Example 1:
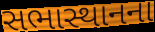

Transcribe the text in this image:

સભાસ્થાનના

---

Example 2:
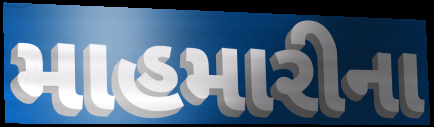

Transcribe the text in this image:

માહમારીના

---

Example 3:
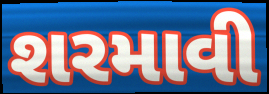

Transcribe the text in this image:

શરમાવી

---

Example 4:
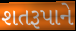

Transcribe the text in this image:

શતરૂપાને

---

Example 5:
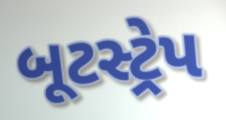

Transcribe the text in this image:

બૂટસ્ટ્રેપ